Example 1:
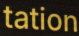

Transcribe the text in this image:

tation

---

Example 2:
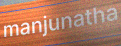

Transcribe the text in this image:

manjunatha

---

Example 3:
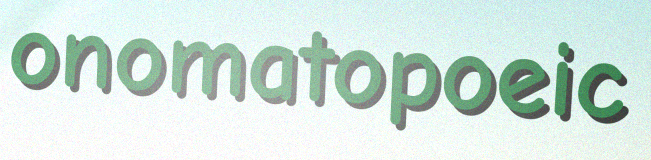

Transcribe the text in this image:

onomatopoeic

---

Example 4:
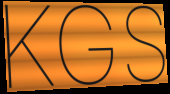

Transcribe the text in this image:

KGS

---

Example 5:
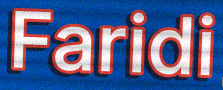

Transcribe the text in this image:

Faridi